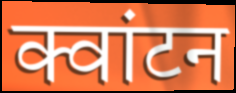
क्वांटन